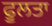
ਫੂਲਤਾ